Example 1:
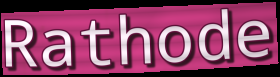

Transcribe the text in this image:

Rathode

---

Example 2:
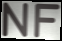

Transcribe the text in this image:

NF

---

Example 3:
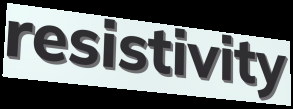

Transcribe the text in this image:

resistivity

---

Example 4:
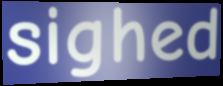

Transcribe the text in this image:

sighed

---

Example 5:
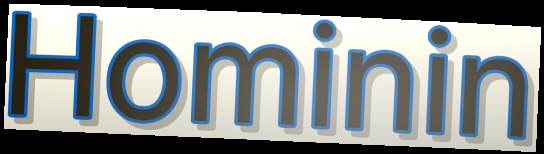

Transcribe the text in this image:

Hominin